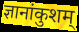
ज्ञानांकुशम्